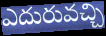
ఎదురువచ్చి